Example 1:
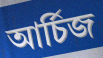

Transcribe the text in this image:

আর্চিজ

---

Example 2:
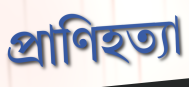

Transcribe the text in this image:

প্রাণিহত্যা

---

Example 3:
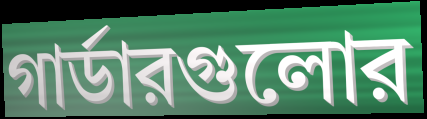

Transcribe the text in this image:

গার্ডারগুলোর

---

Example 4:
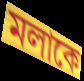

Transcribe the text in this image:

মলাকে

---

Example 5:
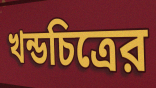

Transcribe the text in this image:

খন্ডচিত্রের